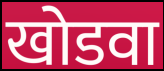
खोडवा